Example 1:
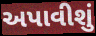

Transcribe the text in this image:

અપાવીશું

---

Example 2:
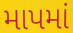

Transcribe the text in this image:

માપમાં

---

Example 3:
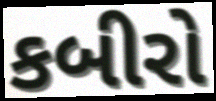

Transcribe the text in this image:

કબીરો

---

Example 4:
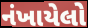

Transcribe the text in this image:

નંખાયેલો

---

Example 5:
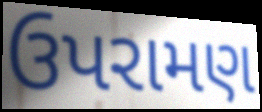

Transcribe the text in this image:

ઉપરામણ